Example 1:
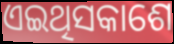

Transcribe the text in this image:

ଏଇଥିସକାଶେ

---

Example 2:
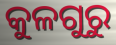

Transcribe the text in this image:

କୁଳଗୁରୁ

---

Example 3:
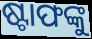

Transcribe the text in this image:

ଷ୍ଟାଫଙ୍କୁ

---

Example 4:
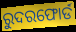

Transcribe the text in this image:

ରୁଦରଫୋର୍ଡ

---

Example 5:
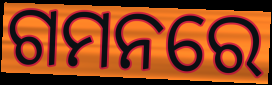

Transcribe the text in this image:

ଗମନରେ